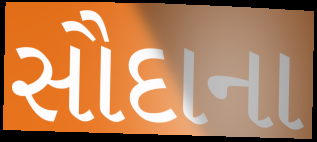
સૌદાના